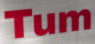
Tum